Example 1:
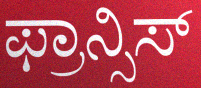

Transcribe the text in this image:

ಫ್ರಾನ್ಸಿಸ್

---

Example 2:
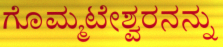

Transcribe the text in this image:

ಗೊಮ್ಮಟೇಶ್ವರನನ್ನು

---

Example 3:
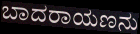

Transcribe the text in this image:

ಬಾದರಾಯಣನು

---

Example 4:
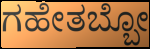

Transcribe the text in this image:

ಗಹೇತಬ್ಬೋ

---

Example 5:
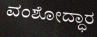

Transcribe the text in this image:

ವಂಶೋದ್ಧಾರ